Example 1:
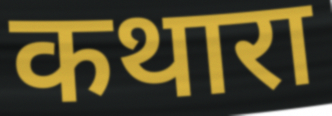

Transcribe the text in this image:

कथारा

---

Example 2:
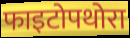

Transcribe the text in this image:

फाइटोपथोरा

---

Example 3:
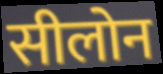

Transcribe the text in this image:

सीलोन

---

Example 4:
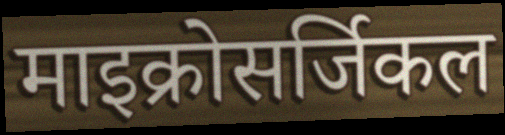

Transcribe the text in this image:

माइक्रोसर्जिकल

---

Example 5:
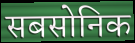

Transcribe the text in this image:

सबसोनिक